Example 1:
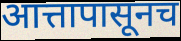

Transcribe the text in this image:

आत्तापासूनच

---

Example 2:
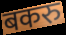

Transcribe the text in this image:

बकरु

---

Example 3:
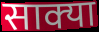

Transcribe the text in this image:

साक्या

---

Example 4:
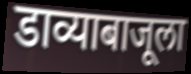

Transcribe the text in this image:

डाव्याबाजूला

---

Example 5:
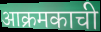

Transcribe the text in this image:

आक्रमकाची